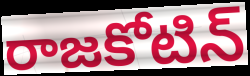
రాజకోటిన్